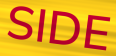
SIDE